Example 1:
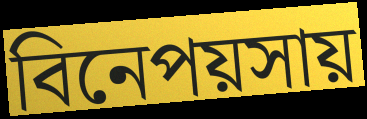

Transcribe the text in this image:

বিনেপয়সায়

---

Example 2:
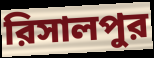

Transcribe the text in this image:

রিসালপুর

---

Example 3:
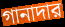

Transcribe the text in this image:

গানাদার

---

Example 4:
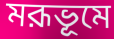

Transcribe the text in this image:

মরূভূমে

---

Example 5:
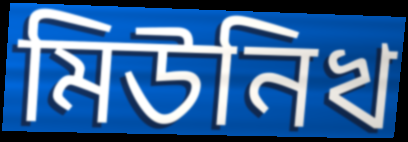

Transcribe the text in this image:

মিউনিখ